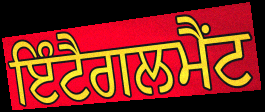
ਇੰਟੈਗਲਮੈਂਟ